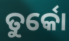
ତୁର୍କୋ